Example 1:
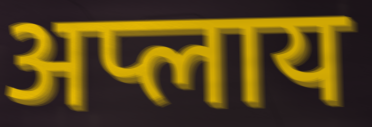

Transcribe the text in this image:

अप्लाय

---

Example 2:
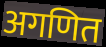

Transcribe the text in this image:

अगणित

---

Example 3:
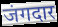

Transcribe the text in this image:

जंगदार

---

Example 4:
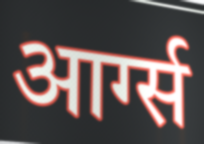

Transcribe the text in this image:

आर्ग्स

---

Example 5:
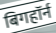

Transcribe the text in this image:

बिगहॉर्न